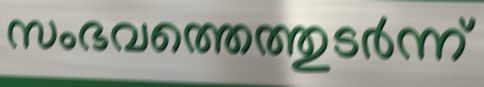
സംഭവത്തെത്തുടർന്ന്